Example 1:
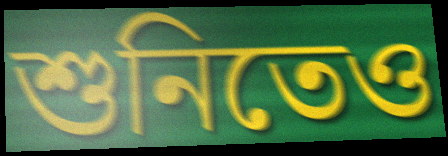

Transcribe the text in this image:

শুনিতেও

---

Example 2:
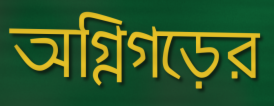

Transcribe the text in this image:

অগ্নিগড়ের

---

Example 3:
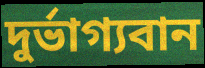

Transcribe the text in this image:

দুর্ভাগ্যবান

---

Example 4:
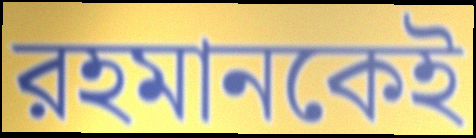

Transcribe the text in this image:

রহমানকেই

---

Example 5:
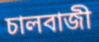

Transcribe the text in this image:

চালবাজী